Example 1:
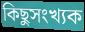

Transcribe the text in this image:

কিছুসংখ্যক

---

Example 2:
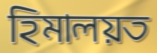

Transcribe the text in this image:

হিমালয়ত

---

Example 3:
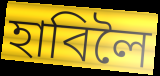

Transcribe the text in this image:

হাবিলৈ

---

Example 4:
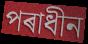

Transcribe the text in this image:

পৰাধীন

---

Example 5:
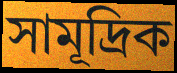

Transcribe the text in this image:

সামূদ্ৰিক